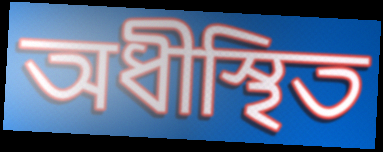
অধীস্থিত